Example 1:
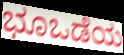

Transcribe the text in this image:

ಭೂಒಡೆಯ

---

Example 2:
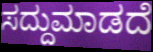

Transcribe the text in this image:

ಸದ್ದುಮಾಡದೆ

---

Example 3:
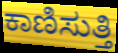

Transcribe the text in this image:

ಕಾಣಿಸುತ್ತಿ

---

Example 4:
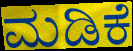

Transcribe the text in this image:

ಮಡಿಕೆ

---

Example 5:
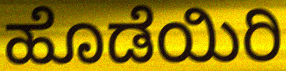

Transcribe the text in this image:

ಹೊಡೆಯಿರಿ